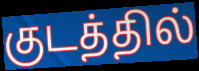
குடத்தில்